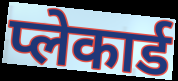
प्लेकार्ड